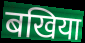
बखिया